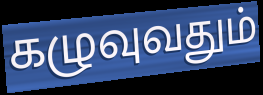
கழுவுவதும்